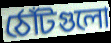
ঠোঁটগুলো